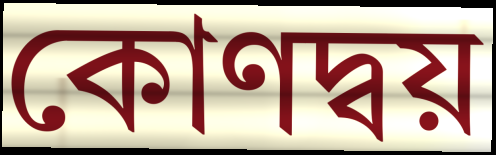
কোণদ্বয়